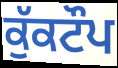
ਕੁੱਕਟੌਪ